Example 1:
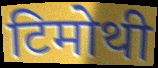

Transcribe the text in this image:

टिमोथी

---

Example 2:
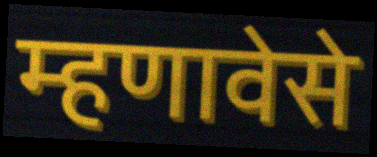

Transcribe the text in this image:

म्हणावेसे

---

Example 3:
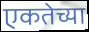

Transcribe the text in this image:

एकतेच्या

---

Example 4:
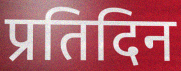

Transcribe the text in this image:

प्रतिदिन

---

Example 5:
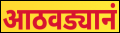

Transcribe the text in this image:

आठवड्यानं